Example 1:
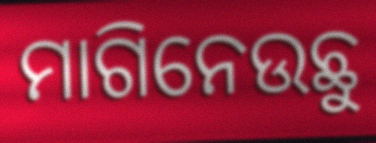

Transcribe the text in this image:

ମାଗିନେଉଛୁ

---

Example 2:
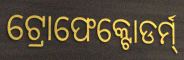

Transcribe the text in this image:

ଟ୍ରୋଫେକ୍ଟୋଡର୍ମ୍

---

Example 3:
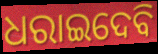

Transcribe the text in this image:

ଧରାଇଦେବି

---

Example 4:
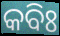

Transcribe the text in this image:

କବିଃ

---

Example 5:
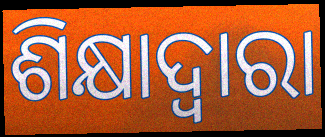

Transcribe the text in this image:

ଶିକ୍ଷାଦ୍ୱାରା